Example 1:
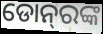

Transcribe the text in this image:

ଡୋନ୍‌ରଙ୍କ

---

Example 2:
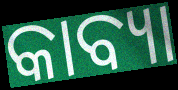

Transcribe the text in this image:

କାବ୍ୟା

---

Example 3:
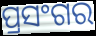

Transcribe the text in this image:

ପ୍ରସଂଗର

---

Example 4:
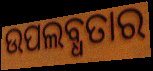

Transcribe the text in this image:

ଉପଲବ୍ଧତାର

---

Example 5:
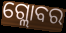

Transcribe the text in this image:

ଗ୍ଲୋବର